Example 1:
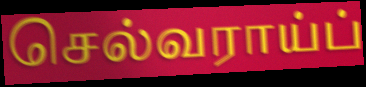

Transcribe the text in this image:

செல்வராய்ப்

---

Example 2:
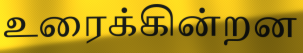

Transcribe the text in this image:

உரைக்கின்றன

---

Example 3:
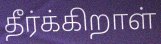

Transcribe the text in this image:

தீர்க்கிறாள்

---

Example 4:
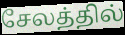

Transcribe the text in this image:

சேலத்தில்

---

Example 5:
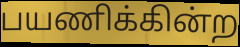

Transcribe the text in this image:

பயணிக்கின்ற